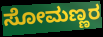
ಸೋಮಣ್ಣರ